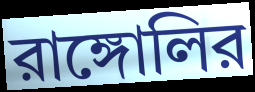
রাঙ্গোলির